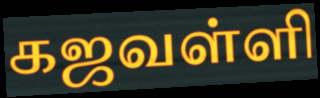
கஜவள்ளி